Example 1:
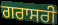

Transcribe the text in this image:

ਗਰਾਸਰੀ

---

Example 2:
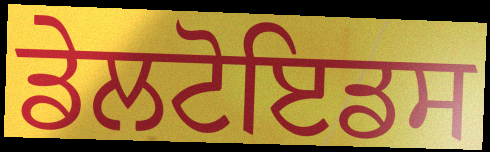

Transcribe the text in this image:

ਡੇਲਟੋਇਡਸ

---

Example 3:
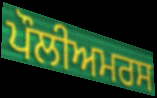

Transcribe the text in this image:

ਪੌਲੀਅਮਰਸ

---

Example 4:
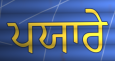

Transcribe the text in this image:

ਪਯਾਰੇ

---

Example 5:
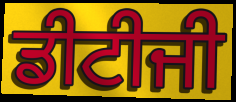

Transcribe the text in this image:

ਡੀਟੀਜੀ